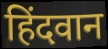
हिंदवान